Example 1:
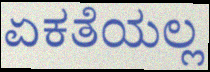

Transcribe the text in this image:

ಏಕತೆಯಲ್ಲ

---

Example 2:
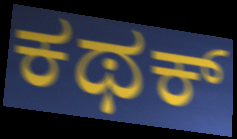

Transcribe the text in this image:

ಕಥಕ್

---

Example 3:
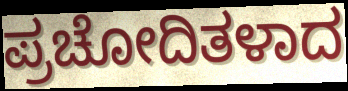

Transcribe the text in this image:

ಪ್ರಚೋದಿತಳಾದ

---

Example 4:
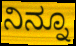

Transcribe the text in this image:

ನಿನ್ನೂ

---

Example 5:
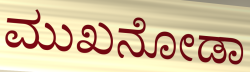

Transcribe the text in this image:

ಮುಖನೋಡಾ